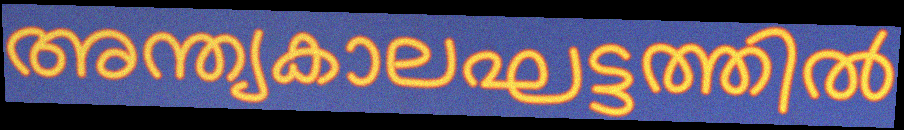
അന്ത്യകാലഘട്ടത്തിൽ